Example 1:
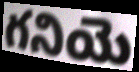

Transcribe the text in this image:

గనియె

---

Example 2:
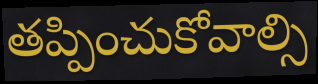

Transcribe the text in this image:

తప్పించుకోవాల్సి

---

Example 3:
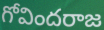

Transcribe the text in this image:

గోవిందరాజ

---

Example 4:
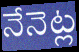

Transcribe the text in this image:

నేనెట్ల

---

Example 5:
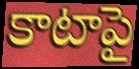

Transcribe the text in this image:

కాటాపై